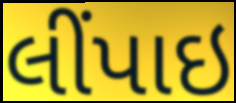
લીંપાઇ